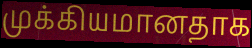
முக்கியமானதாக